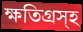
ক্ষতিগ্রস্হ